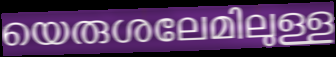
യെരുശലേമിലുള്ള